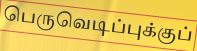
பெருவெடிப்புக்குப்